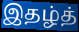
இதழ்த்